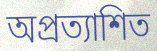
অপ্রত্যাশিত